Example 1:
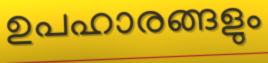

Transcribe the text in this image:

ഉപഹാരങ്ങളും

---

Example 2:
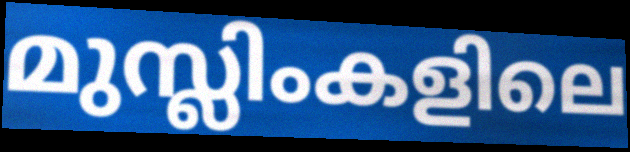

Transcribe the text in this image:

മുസ്ലിംകളിലെ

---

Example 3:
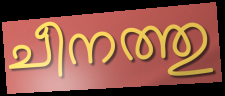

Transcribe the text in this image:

ചീനത്തു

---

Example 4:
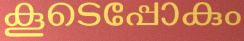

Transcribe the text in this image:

കൂടെപ്പോകും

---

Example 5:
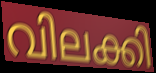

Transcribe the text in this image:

വിലക്കി